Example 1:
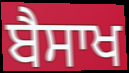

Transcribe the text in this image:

ਬੈਸਾਖ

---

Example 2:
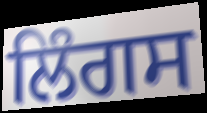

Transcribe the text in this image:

ਲਿੰਗਸ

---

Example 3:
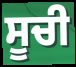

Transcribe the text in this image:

ਸੂਚੀ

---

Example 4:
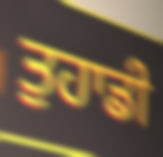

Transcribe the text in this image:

ਤੁਹਾਡੀ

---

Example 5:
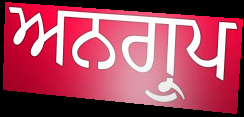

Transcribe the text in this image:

ਅਨਗ੍ਰੁਪ